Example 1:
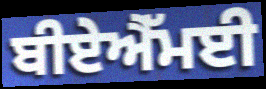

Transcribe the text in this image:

ਬੀਏਐੱਮਈ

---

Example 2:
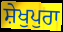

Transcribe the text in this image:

ਸ਼ੇਖੁਪੁਰਾ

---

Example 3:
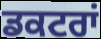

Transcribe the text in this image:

ਡਕਟਰਾਂ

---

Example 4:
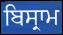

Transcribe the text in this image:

ਬਿਸ੍ਰਾਮ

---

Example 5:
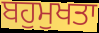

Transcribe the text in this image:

ਬਹੁਮੁਖਤਾ